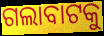
ଗଲାବାଟକୁ